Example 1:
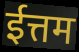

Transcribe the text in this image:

ईत्तम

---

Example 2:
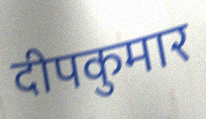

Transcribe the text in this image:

दीपकुमार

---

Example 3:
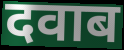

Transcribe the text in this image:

दवाब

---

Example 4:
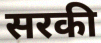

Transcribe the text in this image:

सरकी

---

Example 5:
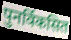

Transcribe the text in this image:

पुनर्विकसित